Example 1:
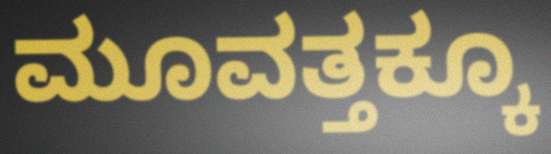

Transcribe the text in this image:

ಮೂವತ್ತಕ್ಕೂ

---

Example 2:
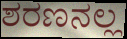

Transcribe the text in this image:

ಶರಣನಲ್ಲ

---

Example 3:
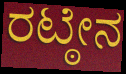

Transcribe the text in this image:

ರಟ್ಠೇನ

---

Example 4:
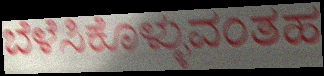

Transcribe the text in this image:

ಬೆಳೆಸಿಕೊಳ್ಳುವಂತಹ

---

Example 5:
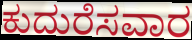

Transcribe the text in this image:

ಕುದುರೆಸವಾರ